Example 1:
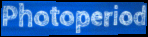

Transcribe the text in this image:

Photoperiod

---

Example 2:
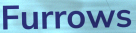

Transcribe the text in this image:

Furrows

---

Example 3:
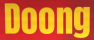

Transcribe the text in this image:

Doong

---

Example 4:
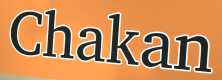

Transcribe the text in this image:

Chakan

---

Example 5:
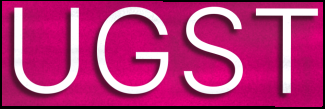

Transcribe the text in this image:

UGST